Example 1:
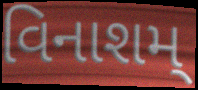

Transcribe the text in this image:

વિનાશમ્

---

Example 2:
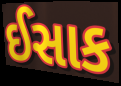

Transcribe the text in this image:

ઈસાક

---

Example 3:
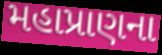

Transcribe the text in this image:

મહાપ્રાણના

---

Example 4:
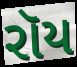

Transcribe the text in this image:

રૉય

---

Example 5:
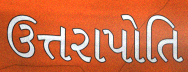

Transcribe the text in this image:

ઉત્તરાપોતિ